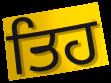
ਤਿਹ